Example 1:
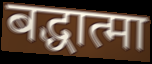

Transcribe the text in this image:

बद्धात्मा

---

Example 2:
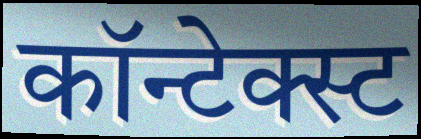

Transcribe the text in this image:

कॉन्टेक्स्ट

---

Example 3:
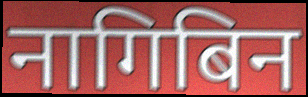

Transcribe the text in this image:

नागिबिन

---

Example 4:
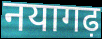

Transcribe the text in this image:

नयागढ़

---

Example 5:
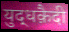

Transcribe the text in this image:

युद्धक़ैदी